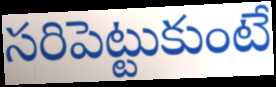
సరిపెట్టుకుంటే